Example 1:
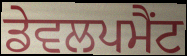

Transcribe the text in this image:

ਡੇਵਲਪਮੈਂਟ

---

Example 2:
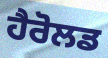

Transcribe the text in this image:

ਹੈਰੋਲਡ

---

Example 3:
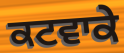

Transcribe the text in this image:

ਕਟਵਾਕੇ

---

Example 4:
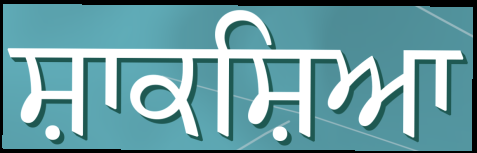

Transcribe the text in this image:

ਸ਼ਾਕਸ਼ਿਆ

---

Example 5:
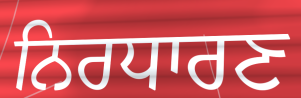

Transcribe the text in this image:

ਨਿਰਧਾਰਣ